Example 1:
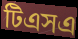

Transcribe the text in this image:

টিএসএ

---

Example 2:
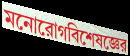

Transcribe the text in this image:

মনোরোগবিশেষজ্ঞের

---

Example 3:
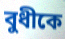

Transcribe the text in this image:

বুধীকে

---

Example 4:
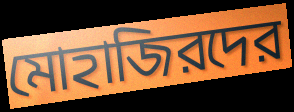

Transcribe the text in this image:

মোহাজিরদের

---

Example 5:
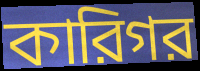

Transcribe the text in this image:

কারিগর